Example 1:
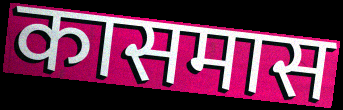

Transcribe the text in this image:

कासमास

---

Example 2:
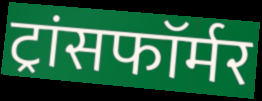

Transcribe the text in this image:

ट्रांसफॉर्मर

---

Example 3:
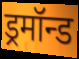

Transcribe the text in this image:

ड्रमॉन्ड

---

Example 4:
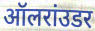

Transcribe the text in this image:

ऑलरांउडर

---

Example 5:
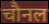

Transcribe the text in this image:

चौनल